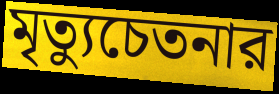
মৃত্যুচেতনার